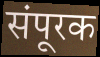
संपूरक